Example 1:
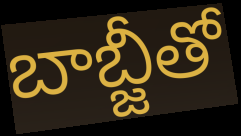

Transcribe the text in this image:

బాబ్జీతో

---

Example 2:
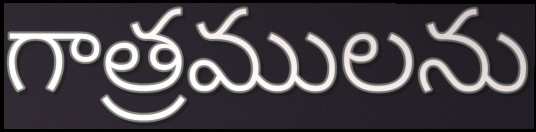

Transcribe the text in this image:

గాత్రములను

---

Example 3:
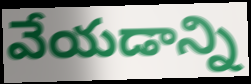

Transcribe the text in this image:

వేయడాన్ని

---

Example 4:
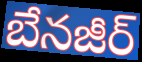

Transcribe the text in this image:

బేనజీర్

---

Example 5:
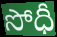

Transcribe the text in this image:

సోధీ